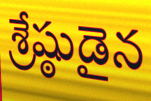
శ్రేష్ఠుడైన